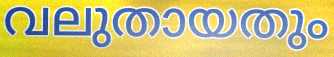
വലുതായതും